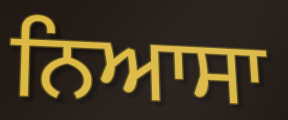
ਨਿਆਸਾ